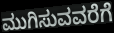
ಮುಗಿಸುವವರೆಗೆ